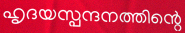
ഹൃദയസ്പന്ദനത്തിന്റെ